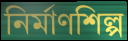
নির্মাণশিল্প